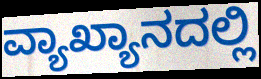
ವ್ಯಾಖ್ಯಾನದಲ್ಲಿ